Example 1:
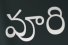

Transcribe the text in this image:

వూరి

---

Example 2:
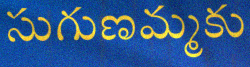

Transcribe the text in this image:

సుగుణమ్మకు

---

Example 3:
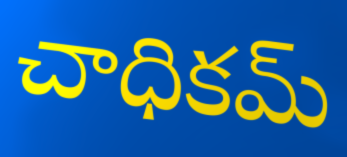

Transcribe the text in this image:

చాధికమ్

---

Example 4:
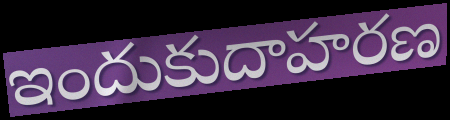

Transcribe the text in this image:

ఇందుకుదాహరణ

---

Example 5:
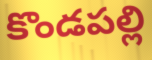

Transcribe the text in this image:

కొండపల్లి